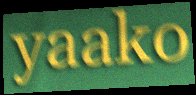
yaako